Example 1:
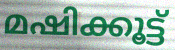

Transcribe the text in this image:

മഷിക്കൂട്ട്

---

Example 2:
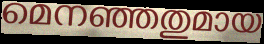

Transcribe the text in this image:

മെനഞ്ഞതുമായ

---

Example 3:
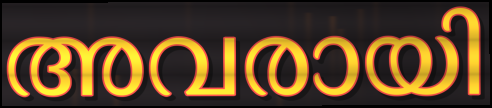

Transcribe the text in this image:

അവരായി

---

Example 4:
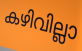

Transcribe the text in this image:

കഴിവില്ലാ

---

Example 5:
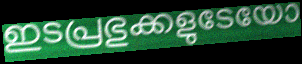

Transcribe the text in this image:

ഇടപ്രഭുക്കളുടേയോ